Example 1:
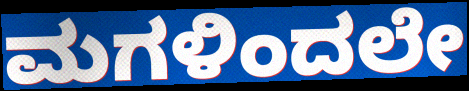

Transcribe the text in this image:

ಮಗಳಿಂದಲೇ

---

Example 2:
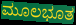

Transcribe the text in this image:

ಮೂಲಭೂತ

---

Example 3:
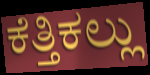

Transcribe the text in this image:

ಕೆತ್ತಿಕಲ್ಲು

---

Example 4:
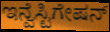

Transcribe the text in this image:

ಇನ್ವೆಸ್ಟಿಗೇಷನ್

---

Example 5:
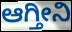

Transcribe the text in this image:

ಆಗ್ತೀನಿ